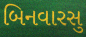
બિનવારસુ